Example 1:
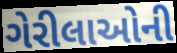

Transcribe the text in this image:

ગેરીલાઓની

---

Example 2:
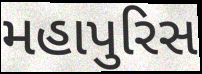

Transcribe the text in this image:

મહાપુરિસ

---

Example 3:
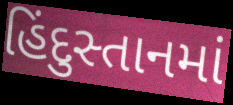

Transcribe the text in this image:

હિંદુસ્તાનમાં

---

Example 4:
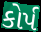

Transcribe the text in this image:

કોર્પ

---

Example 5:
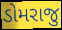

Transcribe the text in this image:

ડોમરાજુ